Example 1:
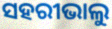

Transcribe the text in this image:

ସହରୀଭାଲୁ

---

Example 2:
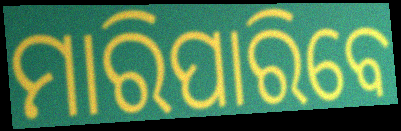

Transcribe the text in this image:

ମାରିପାରିବେ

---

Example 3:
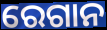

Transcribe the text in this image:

ରେଗାନ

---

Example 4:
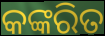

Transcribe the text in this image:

କଙ୍କରିତ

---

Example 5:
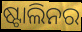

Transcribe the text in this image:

ଷ୍ଟାଲିନର